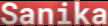
Sanika